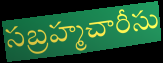
సబ్రహ్మచారీసు